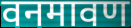
वनमावण